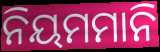
ନିୟମମାନି